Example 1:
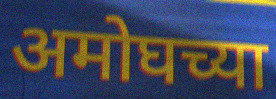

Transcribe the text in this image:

अमोघच्या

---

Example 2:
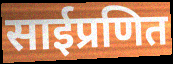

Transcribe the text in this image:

साईप्रणित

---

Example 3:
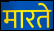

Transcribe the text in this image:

मारते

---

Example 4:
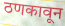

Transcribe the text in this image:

ठणकावून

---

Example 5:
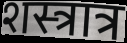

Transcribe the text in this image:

शस्त्रात्र